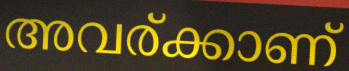
അവര്ക്കാണ്